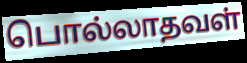
பொல்லாதவள்